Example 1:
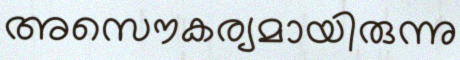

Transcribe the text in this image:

അസൌകര്യമായിരുന്നു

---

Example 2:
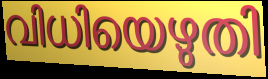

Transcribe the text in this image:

വിധിയെഴുതി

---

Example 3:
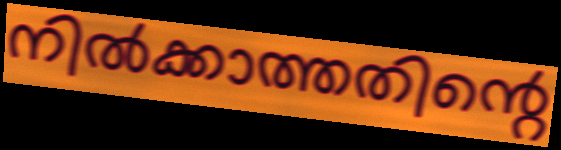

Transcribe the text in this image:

നിൽക്കാത്തതിന്റെ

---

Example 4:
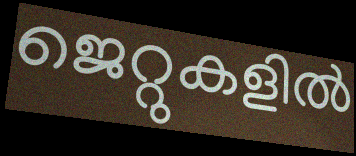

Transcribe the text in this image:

ജെറ്റുകളിൽ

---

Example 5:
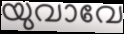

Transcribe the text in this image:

യുവാവേ